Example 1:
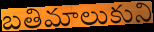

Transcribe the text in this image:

బతిమాలుకుని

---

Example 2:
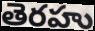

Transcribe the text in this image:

తెరహు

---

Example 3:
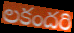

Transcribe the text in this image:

లకందరి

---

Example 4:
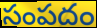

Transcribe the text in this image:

సంపదం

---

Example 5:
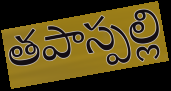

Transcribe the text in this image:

తపాస్పల్లి